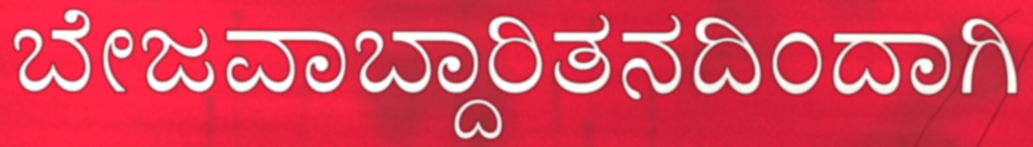
ಬೇಜವಾಬ್ದಾರಿತನದಿಂದಾಗಿ